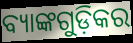
ବ୍ୟାଙ୍କଗୁଡ଼ିକର